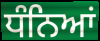
ਧੰਨਿਆਂ